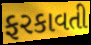
ફરકાવતી